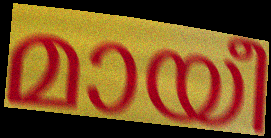
മായീ